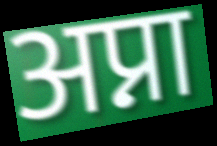
अप्ना